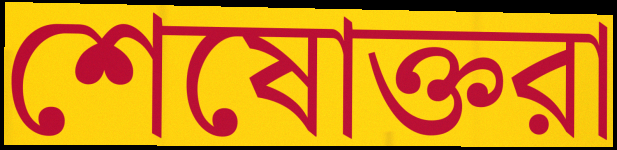
শেষোক্তরা